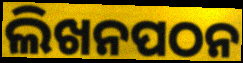
ଲିଖନପଠନ